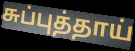
சுப்புத்தாய்